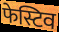
फेस्टिव